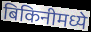
बिकिनीमध्ये